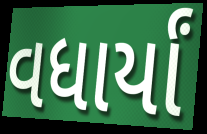
વધાર્યાં